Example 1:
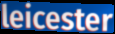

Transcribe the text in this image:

leicester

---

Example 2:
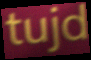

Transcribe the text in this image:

tujd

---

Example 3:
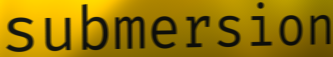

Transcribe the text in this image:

submersion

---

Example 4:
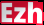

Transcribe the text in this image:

Ezh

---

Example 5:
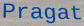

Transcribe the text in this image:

Pragat